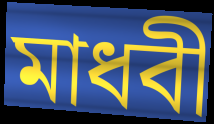
মাধবী